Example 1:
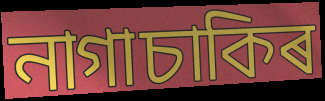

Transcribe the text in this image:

নাগাচাকিৰ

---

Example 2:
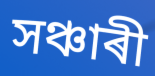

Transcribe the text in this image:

সঞ্চাৰী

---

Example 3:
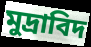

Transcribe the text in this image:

মুদ্ৰাবিদ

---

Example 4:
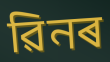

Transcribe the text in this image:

ৱিনৰ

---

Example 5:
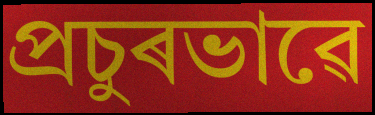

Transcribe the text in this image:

প্ৰচুৰভাৱে